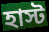
হাস্ট